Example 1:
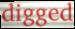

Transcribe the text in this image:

digged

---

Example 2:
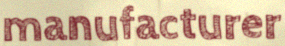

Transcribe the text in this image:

manufacturer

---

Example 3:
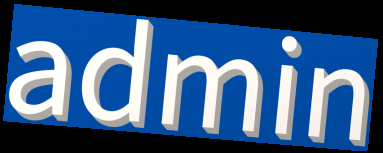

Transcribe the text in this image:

admin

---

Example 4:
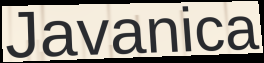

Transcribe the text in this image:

Javanica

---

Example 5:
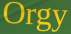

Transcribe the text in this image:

Orgy